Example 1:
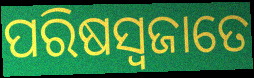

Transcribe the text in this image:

ପରିଷସ୍ଵଜାତେ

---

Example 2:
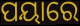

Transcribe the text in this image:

ପୟାରେ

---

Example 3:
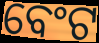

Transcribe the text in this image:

ବେଂଟ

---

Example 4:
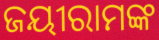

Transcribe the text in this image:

ଜୟୀରାମଙ୍କ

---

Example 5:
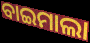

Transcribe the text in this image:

ବାଇମାଲା